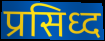
प्रसिध्द